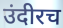
उंदीरच